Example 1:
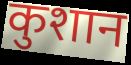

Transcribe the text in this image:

कुशान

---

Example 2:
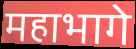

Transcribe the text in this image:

महाभागे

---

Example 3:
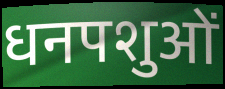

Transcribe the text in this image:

धनपशुओं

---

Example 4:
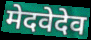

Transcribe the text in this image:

मेदवेदेव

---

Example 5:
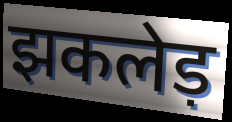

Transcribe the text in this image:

झकलेड़